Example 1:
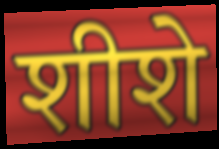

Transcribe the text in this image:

शीशे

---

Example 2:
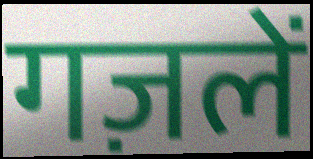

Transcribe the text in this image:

गज़लें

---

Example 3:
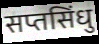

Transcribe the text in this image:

सप्तसिंधु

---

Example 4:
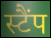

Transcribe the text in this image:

स्टैंप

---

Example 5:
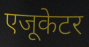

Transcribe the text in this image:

एजूकेटर